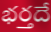
భర్తదే